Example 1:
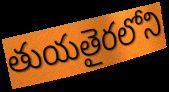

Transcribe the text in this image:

తుయతైరలోని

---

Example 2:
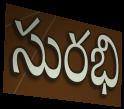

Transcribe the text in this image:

సురభి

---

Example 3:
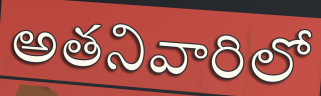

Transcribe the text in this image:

అతనివారిలో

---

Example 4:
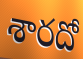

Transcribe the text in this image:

శారదో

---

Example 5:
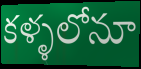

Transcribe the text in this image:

కళ్ళలోనూ